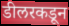
डीलरकडून